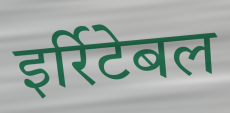
इर्रिटेबल